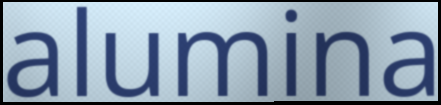
alumina